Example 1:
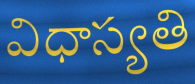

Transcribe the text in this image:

విధాస్యతి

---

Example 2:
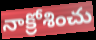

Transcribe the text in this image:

నాక్రోశించు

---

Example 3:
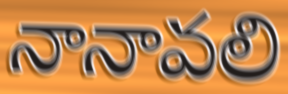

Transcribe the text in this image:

నానావలి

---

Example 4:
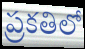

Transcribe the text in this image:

ప్రకతిలో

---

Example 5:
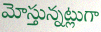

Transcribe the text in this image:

మోస్తున్నట్లుగా